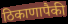
ठिकाणापैकी